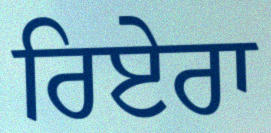
ਰਿਏਰਾ